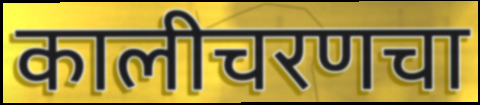
कालीचरणचा